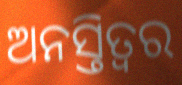
ଅନସ୍ତିତ୍ୱର